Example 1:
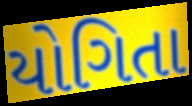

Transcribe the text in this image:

યોગિતા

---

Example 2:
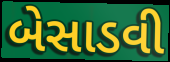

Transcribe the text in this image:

બેસાડવી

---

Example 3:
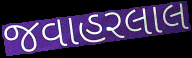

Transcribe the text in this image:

જવાહરલાલ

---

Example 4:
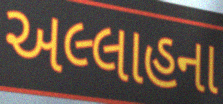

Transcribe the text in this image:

અલ્લાહના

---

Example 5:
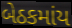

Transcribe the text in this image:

બેઠકમાંય